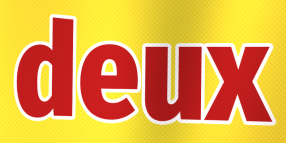
deux